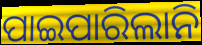
ପାଇପାରିଲାନି